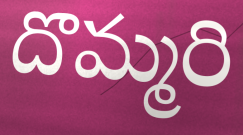
దొమ్మరి